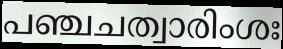
പഞ്ചചത്വാരിംശഃ